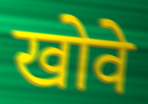
खोवे